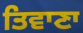
ਤਿਵਾਣਾ